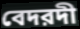
বেদরদী